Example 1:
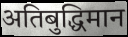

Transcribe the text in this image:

अतिबुद्धिमान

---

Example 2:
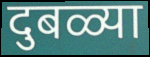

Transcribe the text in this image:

दुबळ्या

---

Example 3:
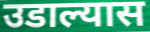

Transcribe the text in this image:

उडाल्यास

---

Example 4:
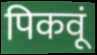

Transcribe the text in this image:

पिकवूं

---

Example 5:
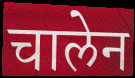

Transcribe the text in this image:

चालेन